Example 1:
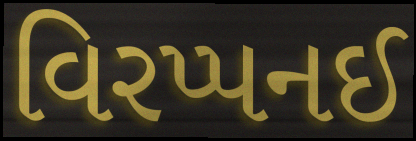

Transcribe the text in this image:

વિરપ્પનઈ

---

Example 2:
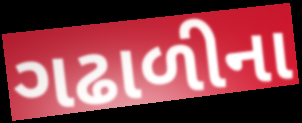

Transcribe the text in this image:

ગઢાળીના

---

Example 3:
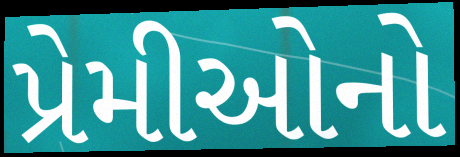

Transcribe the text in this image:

પ્રેમીઓનો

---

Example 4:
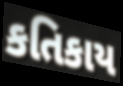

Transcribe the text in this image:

કતિકાય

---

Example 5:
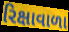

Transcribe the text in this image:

રિક્ષાવાળા